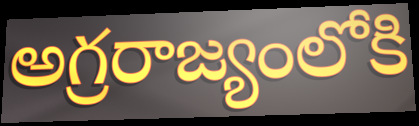
అగ్రరాజ్యంలోకి